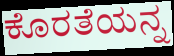
ಕೊರತೆಯನ್ನ